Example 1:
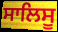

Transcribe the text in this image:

ਸਾਲਿਸੂ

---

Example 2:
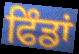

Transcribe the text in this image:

ਫਿੰਡਾਂ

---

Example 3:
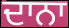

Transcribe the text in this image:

ਦਾਨਾ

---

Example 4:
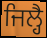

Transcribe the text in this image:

ਜਿਲ੍ਹੈ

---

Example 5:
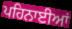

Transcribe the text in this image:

ਪਹਿਨਾਈਆਂ